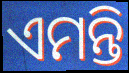
ଏମନ୍ତି